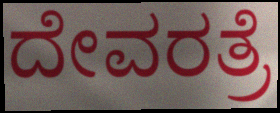
ದೇವರತ್ರೆ